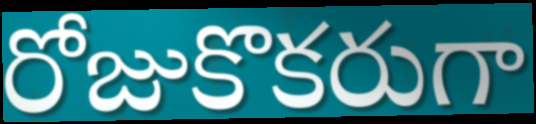
రోజుకొకరుగా